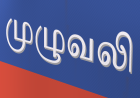
முழுவலி